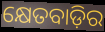
କ୍ଷେତବାଡ଼ିର